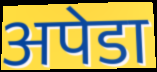
अपेडा